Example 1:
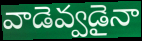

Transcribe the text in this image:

వాడెవ్వడైనా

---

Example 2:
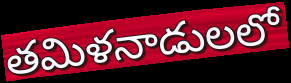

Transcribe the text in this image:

తమిళనాడులలో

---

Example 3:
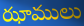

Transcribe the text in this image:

ఝాములు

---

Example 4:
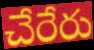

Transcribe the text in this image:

చేరేరు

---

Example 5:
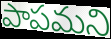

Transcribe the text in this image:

పాపమని